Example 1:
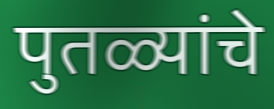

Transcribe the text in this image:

पुतळ्यांचे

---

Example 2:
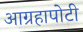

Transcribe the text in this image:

आग्रहापोटी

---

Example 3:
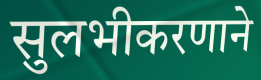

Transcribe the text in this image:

सुलभीकरणाने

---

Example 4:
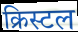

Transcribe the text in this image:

क्रिस्टल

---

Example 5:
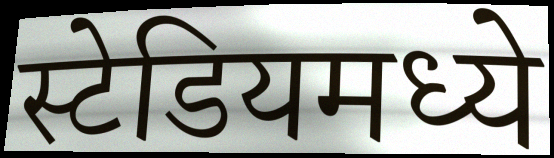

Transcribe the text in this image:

स्टेडियमध्ये